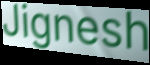
Jignesh